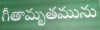
గీతామృతమును